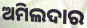
ଅମିଲଦାର